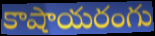
కాషాయరంగు